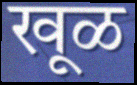
खूळ